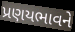
પ્રણયભાવને